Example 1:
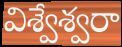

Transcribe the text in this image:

విశ్వేశ్వరా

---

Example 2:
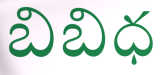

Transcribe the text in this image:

బిబిధ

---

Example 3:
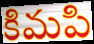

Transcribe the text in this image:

కిమపి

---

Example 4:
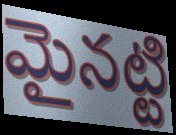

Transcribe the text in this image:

మైనట్టి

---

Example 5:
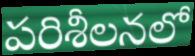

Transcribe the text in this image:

పరిశీలనలో